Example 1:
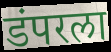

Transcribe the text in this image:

डंपरला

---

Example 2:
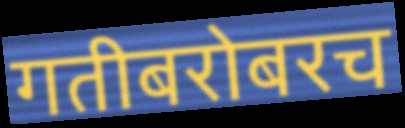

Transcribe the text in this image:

गतीबरोबरच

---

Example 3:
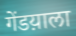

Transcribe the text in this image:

गेंडय़ाला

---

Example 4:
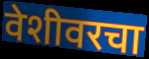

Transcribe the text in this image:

वेशीवरचा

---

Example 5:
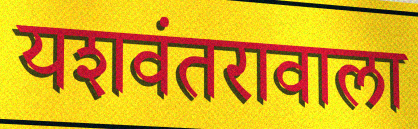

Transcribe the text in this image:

यशवंतरावाला